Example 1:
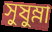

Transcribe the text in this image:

সুষুম্না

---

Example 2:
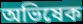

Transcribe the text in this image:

অভিষেক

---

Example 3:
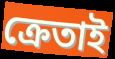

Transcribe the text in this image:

ক্ৰেতাই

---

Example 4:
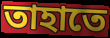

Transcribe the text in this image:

তাহাতে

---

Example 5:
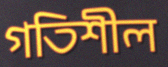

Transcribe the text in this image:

গতিশীল